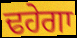
ਢਹੇਗਾ